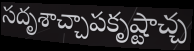
సదృశాచ్చాపకృష్టాచ్చ